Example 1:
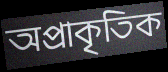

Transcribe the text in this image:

অপ্রাকৃতিক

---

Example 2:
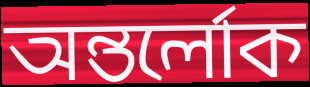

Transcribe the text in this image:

অন্তর্লোক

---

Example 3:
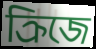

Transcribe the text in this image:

ক্রিজে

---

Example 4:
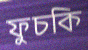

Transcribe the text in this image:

ফুচকি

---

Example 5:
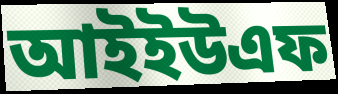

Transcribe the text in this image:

আইইউএফ